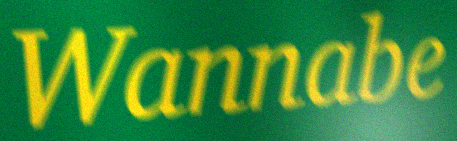
Wannabe